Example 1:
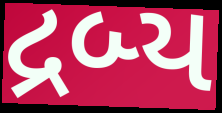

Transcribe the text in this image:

દ્રબ્ય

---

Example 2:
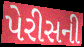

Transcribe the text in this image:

પેરીસની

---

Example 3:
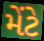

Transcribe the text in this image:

મેંટે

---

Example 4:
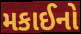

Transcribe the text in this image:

મકાઈનો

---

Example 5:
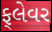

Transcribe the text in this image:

ફ્‌લેવર